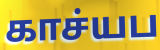
காச்யப